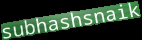
subhashsnaik